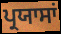
ਪ੍ਰਯਾਸਾਂ